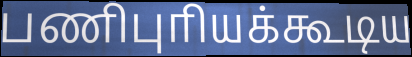
பணிபுரியக்கூடிய